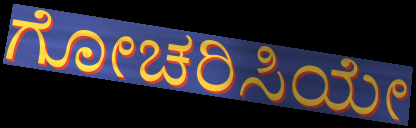
ಗೋಚರಿಸಿಯೇ